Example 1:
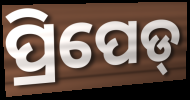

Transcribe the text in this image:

ପ୍ରିପେଡ୍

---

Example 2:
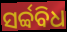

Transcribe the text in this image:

ସର୍ବ୍ବବିଧ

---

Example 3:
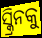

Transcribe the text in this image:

ସ୍କ୍ରିନକୁ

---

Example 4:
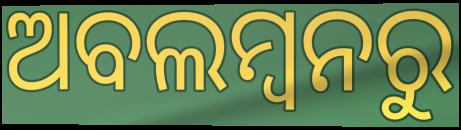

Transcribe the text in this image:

ଅବଲମ୍ବନରୁ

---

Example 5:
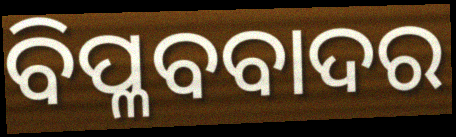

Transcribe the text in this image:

ବିପ୍ଳବବାଦର